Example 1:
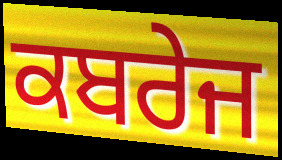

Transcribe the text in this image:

ਕਬਰੇਜ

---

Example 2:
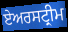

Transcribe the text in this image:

ਏਅਰਸਟ੍ਰੀਮ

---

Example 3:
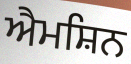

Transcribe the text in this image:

ਐਮਸ਼ਿਨ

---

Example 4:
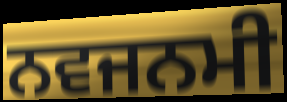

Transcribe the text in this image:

ਨਵਜਨਮੀ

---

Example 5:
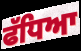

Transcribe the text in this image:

ਫੱਧਿਆ